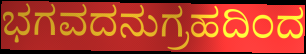
ಭಗವದನುಗ್ರಹದಿಂದ